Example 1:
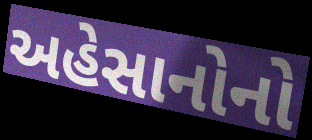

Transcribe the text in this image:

અહેસાનોનો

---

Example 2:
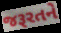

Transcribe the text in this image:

જરૂરતને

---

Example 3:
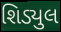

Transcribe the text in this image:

શિડ્યુલ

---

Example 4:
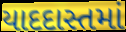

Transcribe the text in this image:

યાદદાસ્તમાં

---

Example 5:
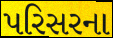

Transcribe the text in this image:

પરિસરના